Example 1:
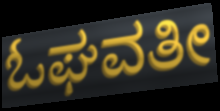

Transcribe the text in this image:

ಓಘವತೀ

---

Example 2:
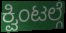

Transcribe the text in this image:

ಕ್ವಿಂಟಲ್ಗೆ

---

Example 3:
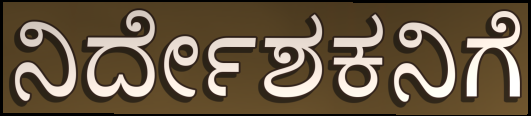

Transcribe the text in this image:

ನಿರ್ದೇಶಕನಿಗೆ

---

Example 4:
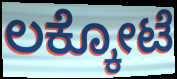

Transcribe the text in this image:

ಲಕ್ಕೋಟೆ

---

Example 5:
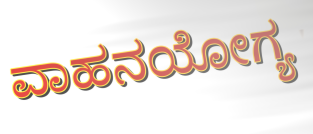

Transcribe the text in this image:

ವಾಹನಯೋಗ್ಯ